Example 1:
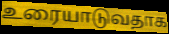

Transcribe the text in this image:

உரையாடுவதாக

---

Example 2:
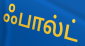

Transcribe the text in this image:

ஃபால்ட்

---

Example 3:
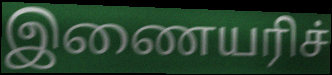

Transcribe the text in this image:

இணையரிச்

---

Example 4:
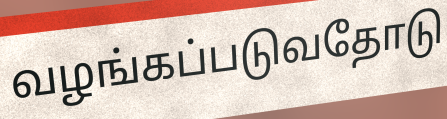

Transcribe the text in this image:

வழங்கப்படுவதோடு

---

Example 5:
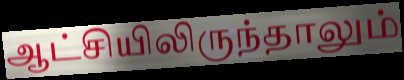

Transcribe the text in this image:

ஆட்சியிலிருந்தாலும்